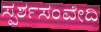
ಸ್ಪರ್ಶಸಂವೇದಿ